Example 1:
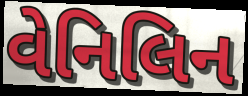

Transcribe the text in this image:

વેનિલિન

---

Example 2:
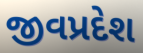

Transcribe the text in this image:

જીવપ્રદેશ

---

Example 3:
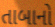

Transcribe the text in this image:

તાબાનો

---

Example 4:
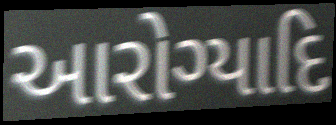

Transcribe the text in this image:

આરોગ્યાદિ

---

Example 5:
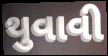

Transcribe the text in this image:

થુવાવી